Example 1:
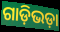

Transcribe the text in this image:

ଗାଡ଼ିଭଡ଼ା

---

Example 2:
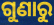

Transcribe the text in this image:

ଗୁଣାରୁ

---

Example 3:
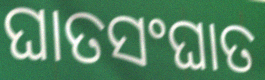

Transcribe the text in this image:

ଘାତସଂଘାତ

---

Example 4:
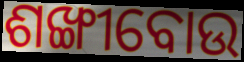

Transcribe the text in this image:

ଶଙ୍ଖୀବୋଉ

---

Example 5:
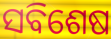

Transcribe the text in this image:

ସବିଶେଷ